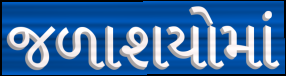
જળાશયોમાં